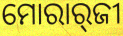
ମୋରାର୍‌ଜୀ